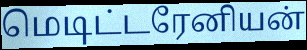
மெடிட்டரேனியன்